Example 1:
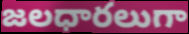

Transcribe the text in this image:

జలధారలుగా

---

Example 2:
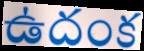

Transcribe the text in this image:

ఉదంక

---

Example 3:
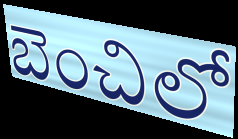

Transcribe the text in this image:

బెంచిలో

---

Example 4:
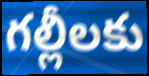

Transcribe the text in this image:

గల్లీలకు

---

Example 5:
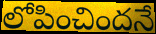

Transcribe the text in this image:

లోపించిందనే